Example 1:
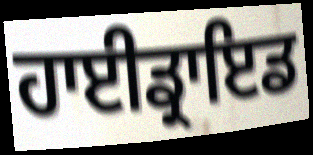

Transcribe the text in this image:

ਹਾਈਡ੍ਰਾਇਡ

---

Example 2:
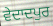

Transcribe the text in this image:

ਵੇਦਾਦਪੁਰ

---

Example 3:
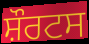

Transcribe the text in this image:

ਸ਼ੌਰਟਸ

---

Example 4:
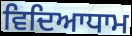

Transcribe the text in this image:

ਵਿਦਿਆਧਾਮ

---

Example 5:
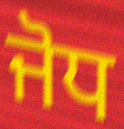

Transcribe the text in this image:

ਜੋਧ